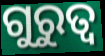
ଗୁରୁତ୍ବ